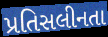
પ્રતિસલીનતા